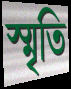
স্মৃতি